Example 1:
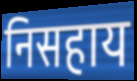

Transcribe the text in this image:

निसहाय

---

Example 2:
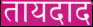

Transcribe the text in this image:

तायदाद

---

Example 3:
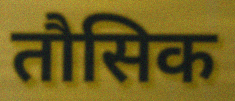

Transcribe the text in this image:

तौसिक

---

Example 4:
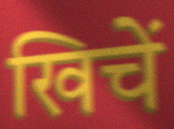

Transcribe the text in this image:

खिचें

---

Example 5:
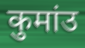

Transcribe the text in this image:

कुमांउ